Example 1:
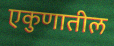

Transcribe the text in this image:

एकुणातील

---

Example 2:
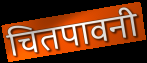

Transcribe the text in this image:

चितपावनी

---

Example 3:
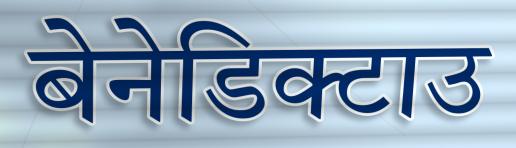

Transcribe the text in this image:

बेनेडिक्टाउ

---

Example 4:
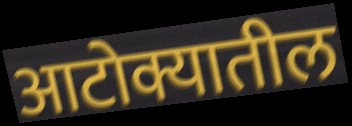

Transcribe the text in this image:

आटोक्यातील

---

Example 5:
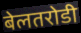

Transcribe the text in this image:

बेलतरोडी